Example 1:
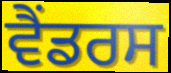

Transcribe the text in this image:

ਵੈਂਡਰਸ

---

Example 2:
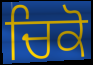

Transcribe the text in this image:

ਚਿਕੋ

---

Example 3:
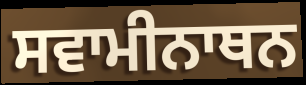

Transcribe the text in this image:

ਸਵਾਮੀਨਾਥਨ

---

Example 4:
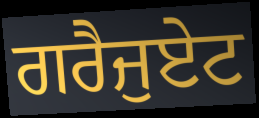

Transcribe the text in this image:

ਗਰੈਜੁਏਟ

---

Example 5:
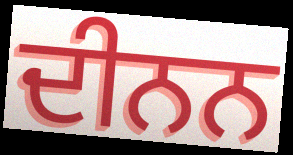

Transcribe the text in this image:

ਦੀਨਨ